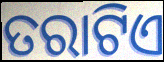
ତରାଟିଏ